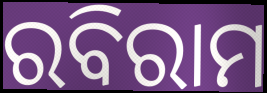
ରବିରାମ